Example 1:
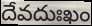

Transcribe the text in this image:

దేవదుఃఖం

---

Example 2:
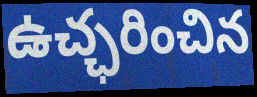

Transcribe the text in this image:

ఉచ్ఛరించిన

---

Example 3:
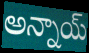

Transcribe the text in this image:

అన్నాయ్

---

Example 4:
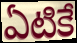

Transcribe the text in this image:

ఏటికే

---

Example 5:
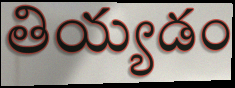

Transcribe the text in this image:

తియ్యడం